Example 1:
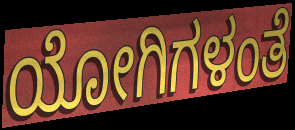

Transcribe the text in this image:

ಯೋಗಿಗಳಂತೆ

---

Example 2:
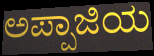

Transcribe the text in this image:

ಅಪ್ಪಾಜಿಯ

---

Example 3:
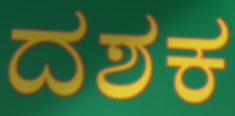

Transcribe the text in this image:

ದಶಕ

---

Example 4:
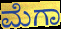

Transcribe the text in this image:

ಮೆಗಾ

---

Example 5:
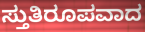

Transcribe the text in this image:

ಸ್ತುತಿರೂಪವಾದ